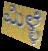
ಮಿಳ್ಳೆ